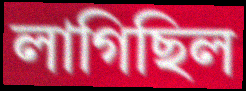
লাগিছিল